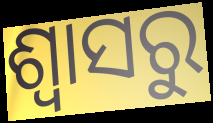
ଶ୍ୱାସରୁ